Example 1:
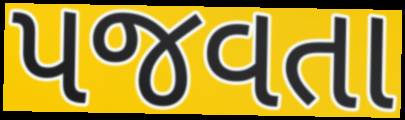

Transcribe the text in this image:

પજવતા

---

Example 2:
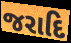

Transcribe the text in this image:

જરાદિ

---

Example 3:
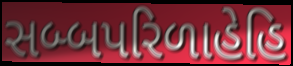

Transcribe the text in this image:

સબ્બપરિળાહેહિ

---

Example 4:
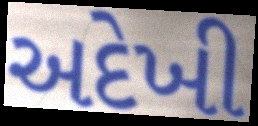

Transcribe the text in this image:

અદેખી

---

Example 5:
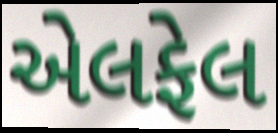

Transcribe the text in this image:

એલફેલ